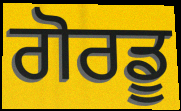
ਗੋਰਡੂ